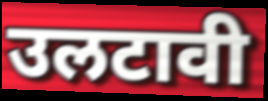
उलटावी